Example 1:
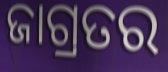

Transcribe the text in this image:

ଜାଗ୍ରତର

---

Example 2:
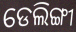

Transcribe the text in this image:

ଡେଲିଙ୍ଗୀ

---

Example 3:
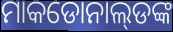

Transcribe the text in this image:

ମାକଡୋନାଲ୍‍ଡଙ୍କ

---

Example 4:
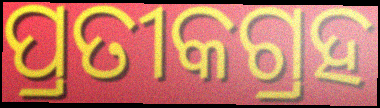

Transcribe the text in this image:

ପ୍ରତୀକଗ୍ରହ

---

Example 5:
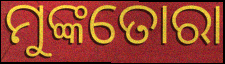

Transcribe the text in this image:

ମୁଙ୍କତୋରା